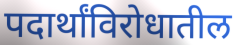
पदार्थांविरोधातील